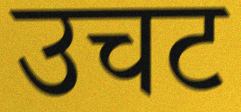
उचट